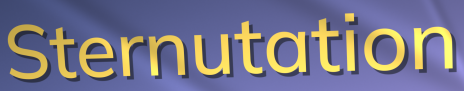
Sternutation